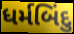
ધર્મબિંદુ